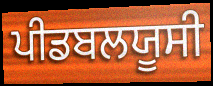
ਪੀਡਬਲਯੂਸੀ